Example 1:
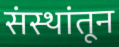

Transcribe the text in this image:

संस्थांतून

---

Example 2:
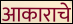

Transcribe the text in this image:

आकाराचे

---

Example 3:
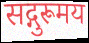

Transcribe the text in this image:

सद्गुरूमय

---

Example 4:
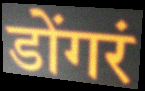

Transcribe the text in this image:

डोंगरं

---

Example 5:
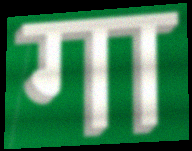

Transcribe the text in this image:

गा